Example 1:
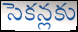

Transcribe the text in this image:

సెకన్లకు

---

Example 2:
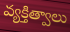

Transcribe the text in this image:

వ్యక్తిత్వాలు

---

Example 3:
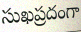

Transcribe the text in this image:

సుఖప్రదంగా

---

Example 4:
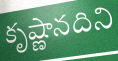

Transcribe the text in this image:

కృష్ణానదిని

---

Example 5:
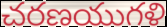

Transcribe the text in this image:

చరణయుగళి